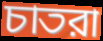
চাতরা